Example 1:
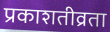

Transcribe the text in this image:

प्रकाशतीव्रता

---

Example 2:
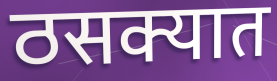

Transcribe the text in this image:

ठसक्यात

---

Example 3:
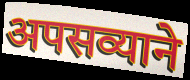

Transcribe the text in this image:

अपसव्याने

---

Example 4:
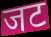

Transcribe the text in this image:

जट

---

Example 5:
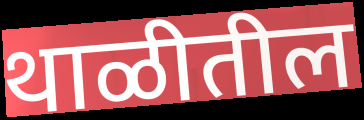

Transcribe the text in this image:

थाळीतील